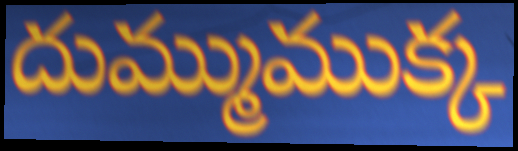
దుమ్ముముక్క